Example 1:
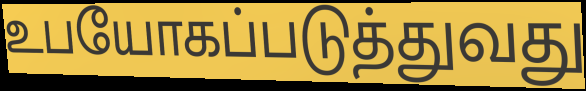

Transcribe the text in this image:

உபயோகப்படுத்துவது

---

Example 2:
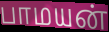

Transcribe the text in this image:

பாமயன்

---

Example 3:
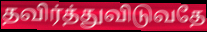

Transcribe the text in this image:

தவிர்த்துவிடுவதே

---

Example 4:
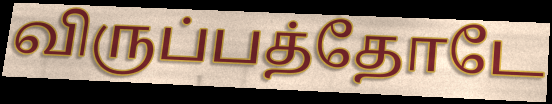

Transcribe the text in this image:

விருப்பத்தோடே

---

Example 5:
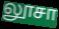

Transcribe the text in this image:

லூசா